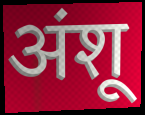
अंशू